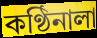
কণ্ঠিনালা